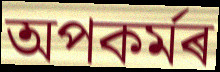
অপকৰ্মৰ